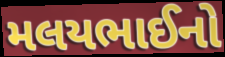
મલયભાઈનો